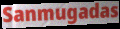
Sanmugadas